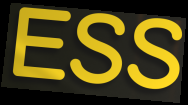
ESS